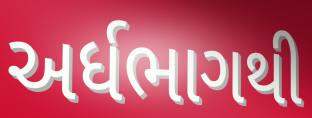
અર્ધભાગથી